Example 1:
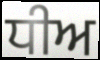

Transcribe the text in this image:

ਧੀਅ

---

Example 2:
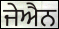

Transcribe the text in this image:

ਜੇਐਨ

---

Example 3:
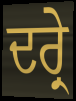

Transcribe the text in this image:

ਦਰ੍ਰੇ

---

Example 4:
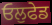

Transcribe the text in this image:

ਓਲੁਫੇਡ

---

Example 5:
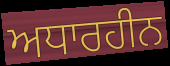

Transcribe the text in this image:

ਅਧਾਰਹੀਨ